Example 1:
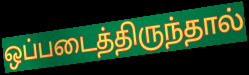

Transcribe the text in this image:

ஒப்படைத்திருந்தால்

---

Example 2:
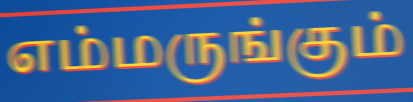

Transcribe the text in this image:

எம்மருங்கும்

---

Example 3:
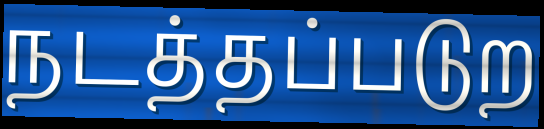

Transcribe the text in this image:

நடத்தப்படுற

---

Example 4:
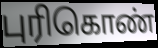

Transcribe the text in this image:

புரிகொண்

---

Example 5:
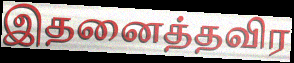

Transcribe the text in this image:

இதனைத்தவிர